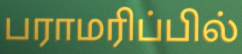
பராமரிப்பில்